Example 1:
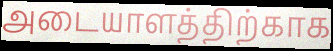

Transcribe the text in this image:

அடையாளத்திற்காக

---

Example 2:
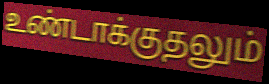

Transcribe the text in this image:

உண்டாக்குதலும்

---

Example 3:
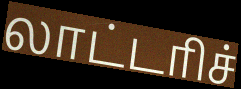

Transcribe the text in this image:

லாட்டரிச்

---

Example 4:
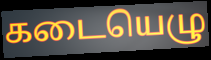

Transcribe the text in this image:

கடையெழு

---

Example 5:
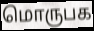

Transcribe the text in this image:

மொருபக